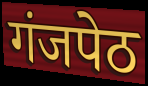
गंजपेठ